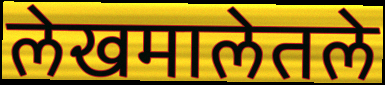
लेखमालेतले